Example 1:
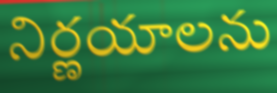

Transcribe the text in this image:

నిర్ణయాలను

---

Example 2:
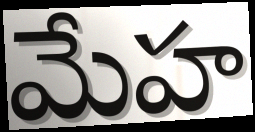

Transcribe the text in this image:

మేహ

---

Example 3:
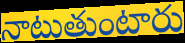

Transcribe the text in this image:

నాటుతుంటారు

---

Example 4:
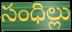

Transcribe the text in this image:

సంధిల్లు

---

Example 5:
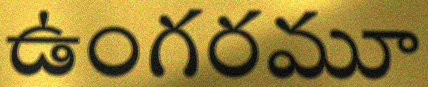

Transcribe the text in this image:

ఉంగరమూ